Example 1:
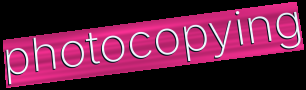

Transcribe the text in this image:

photocopying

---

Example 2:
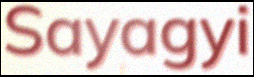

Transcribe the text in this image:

Sayagyi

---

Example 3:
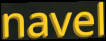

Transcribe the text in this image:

navel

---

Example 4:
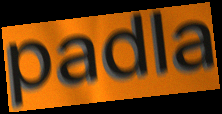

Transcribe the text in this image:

padla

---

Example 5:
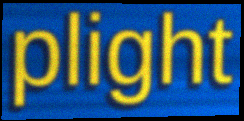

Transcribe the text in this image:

plight